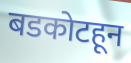
बडकोटहून